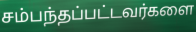
சம்பந்தப்பட்டவர்களை